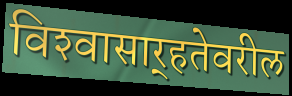
विश्वासार्हतेवरील